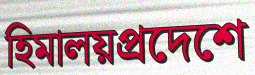
হিমালয়প্রদেশে